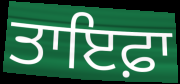
ਤਾਇਫ਼ਾ